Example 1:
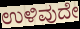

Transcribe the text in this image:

ಉಳಿವುದೇ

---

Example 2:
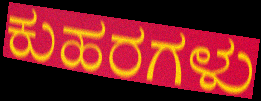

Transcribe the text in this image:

ಕುಹರಗಳು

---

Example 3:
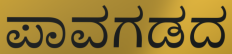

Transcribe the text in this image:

ಪಾವಗಡದ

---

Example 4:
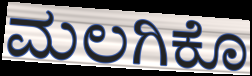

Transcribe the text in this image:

ಮಲಗಿಕೊ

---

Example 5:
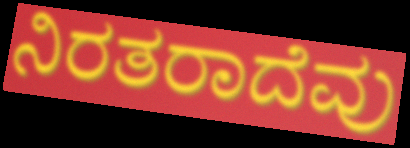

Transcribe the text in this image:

ನಿರತರಾದೆವು